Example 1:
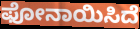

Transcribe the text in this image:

ಫೋನಾಯಿಸಿದೆ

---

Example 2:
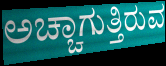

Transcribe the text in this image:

ಅಚ್ಚಾಗುತ್ತಿರುವ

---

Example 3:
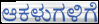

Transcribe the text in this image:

ಆಕಳುಗಳಿಗೆ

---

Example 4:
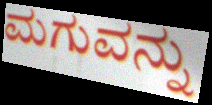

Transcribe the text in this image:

ಮಗುವನ್ನು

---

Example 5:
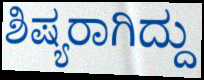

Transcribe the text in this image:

ಶಿಷ್ಯರಾಗಿದ್ದು